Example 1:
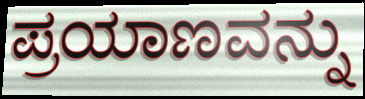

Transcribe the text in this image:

ಪ್ರಯಾಣವನ್ನು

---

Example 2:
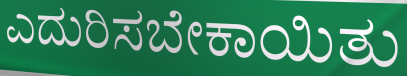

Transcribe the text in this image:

ಎದುರಿಸಬೇಕಾಯಿತು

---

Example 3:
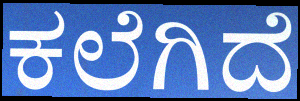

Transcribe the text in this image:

ಕಲೆಗಿದೆ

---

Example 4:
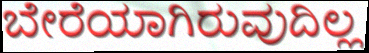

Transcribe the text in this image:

ಬೇರೆಯಾಗಿರುವುದಿಲ್ಲ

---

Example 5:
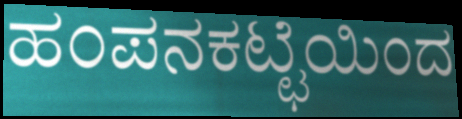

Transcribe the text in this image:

ಹಂಪನಕಟ್ಟೆಯಿಂದ